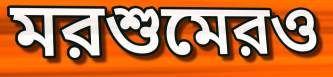
মরশুমেরও